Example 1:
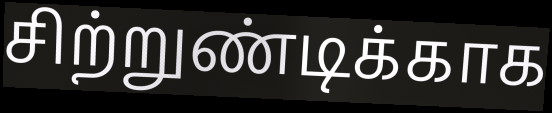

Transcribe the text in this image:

சிற்றுண்டிக்காக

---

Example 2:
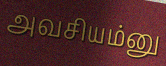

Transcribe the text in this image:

அவசியம்னு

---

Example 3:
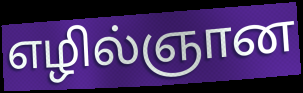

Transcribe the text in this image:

எழில்ஞான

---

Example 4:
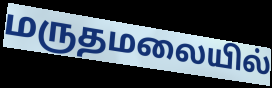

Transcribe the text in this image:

மருதமலையில்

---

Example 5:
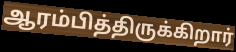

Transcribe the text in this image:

ஆரம்பித்திருக்கிறார்